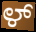
ಳ್